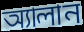
অ্যালান